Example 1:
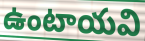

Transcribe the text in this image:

ఉంటాయవి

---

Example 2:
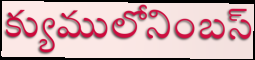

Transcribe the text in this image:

క్యుములోనింబస్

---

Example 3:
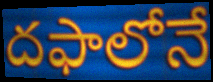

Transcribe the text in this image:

దఫాలోనే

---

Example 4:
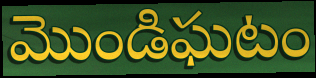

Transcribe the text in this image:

మొండిఘటం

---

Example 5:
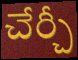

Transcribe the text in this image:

చేర్చీ